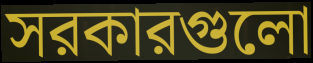
সরকারগুলো